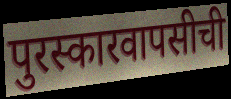
पुरस्कारवापसीची